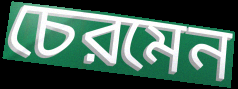
চেরমেন